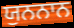
ਯੁਨਨਾਨ